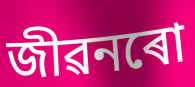
জীৱনৰো